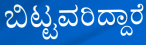
ಬಿಟ್ಟವರಿದ್ದಾರೆ